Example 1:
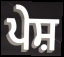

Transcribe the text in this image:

ਪੇਸ਼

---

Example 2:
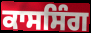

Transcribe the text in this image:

ਕਾਸਸਿੰਗ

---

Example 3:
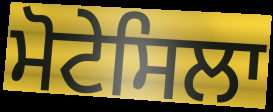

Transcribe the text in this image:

ਮੋਟੇਸਿਲਾ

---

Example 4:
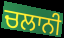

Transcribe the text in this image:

ਚਲਾਨੀ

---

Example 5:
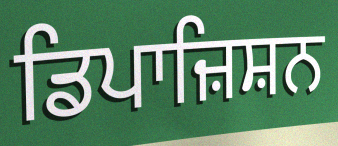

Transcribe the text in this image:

ਡਿਪਾਜ਼ਿਸ਼ਨ